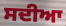
ਸਦੀਆ